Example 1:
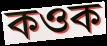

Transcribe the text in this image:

কওক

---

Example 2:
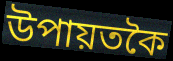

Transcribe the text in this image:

উপায়তকৈ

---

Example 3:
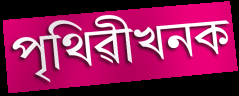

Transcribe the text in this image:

পৃথিৱীখনক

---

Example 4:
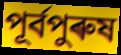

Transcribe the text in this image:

পূৰ্বপুৰুষ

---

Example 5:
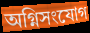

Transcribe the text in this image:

অগ্নিসংযোগ